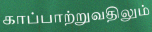
காப்பாற்றுவதிலும்